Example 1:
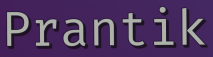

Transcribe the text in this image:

Prantik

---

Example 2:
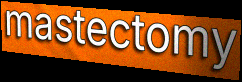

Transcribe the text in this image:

mastectomy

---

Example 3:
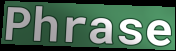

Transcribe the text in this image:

Phrase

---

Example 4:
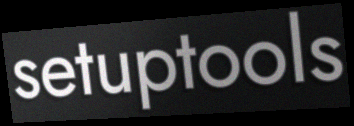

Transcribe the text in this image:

setuptools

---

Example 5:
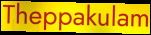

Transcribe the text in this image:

Theppakulam